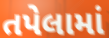
તપેલામાં